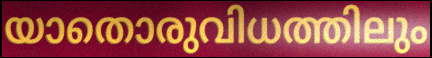
യാതൊരുവിധത്തിലും